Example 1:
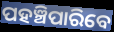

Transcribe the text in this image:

ପହଞ୍ଚିପାରିବେ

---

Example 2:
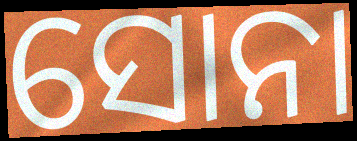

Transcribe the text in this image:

ସୋନା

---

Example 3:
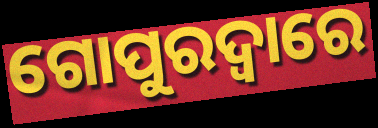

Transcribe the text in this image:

ଗୋପୁରଦ୍ଵାରେ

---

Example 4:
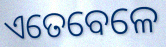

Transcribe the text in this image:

ଏତେବେଳେ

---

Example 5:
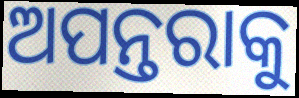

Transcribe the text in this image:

ଅପନ୍ତରାକୁ